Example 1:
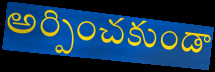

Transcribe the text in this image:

అర్పించకుండా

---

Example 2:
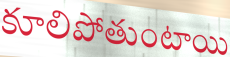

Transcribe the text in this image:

కూలిపోతుంటాయి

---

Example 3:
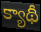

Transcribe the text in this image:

క్యాథీ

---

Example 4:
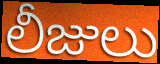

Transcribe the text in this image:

లీజులు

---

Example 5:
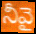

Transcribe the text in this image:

నీవై